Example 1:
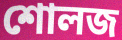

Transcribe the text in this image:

শোলজ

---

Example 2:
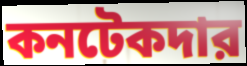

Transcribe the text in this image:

কনটেকদার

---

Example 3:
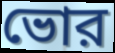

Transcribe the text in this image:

ভোর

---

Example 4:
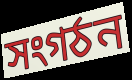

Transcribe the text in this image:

সংগঠন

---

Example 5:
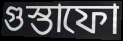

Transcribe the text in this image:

গুস্তাফো